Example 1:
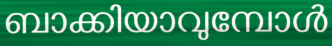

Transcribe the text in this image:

ബാക്കിയാവുമ്പോൾ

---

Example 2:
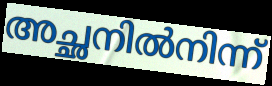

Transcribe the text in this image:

അച്ഛനിൽനിന്ന്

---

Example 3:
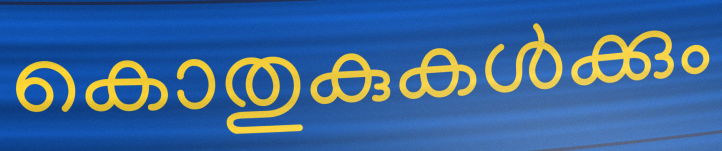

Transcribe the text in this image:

കൊതുകുകൾക്കും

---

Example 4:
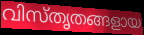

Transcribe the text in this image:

വിസ്തൃതങ്ങളായ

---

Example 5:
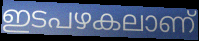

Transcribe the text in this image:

ഇടപഴകലാണ്